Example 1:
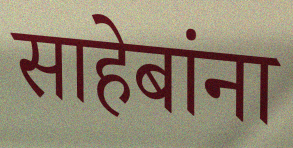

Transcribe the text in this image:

साहेबांना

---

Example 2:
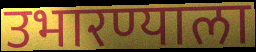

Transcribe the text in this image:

उभारण्याला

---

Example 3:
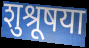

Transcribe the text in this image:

शुश्रूषया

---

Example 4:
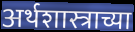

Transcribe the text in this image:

अर्थशास्त्राच्या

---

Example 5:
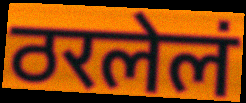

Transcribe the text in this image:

ठरलेलं